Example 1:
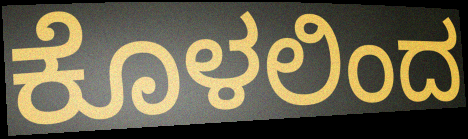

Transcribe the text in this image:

ಕೊಳಲಿಂದ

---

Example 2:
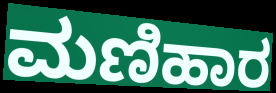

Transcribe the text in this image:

ಮಣಿಹಾರ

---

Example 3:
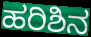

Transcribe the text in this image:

ಹರಿಶಿನ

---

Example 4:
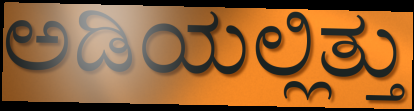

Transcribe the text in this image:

ಅಡಿಯಲ್ಲಿತ್ತು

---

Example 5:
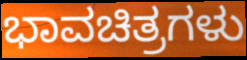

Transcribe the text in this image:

ಭಾವಚಿತ್ರಗಳು